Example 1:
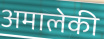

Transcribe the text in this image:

अमालेकी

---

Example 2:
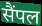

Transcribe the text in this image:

सैंपल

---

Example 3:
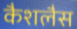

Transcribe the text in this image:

कैशलैस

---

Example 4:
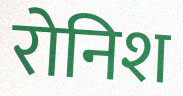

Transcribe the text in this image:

रोनिश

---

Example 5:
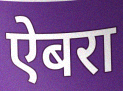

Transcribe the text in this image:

ऐबरा